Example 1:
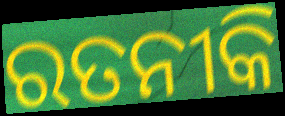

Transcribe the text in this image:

ରତନୀକି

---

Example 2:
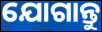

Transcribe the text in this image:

ଯୋଗାନ୍ତୁ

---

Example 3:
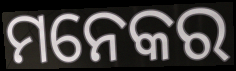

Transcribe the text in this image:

ମନେକର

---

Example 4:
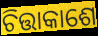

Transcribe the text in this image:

ଚିତ୍ତାକାଶେ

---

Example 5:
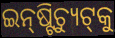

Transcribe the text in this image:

ଇନ୍‌ଷ୍ଟିଚ୍ୟୁଟ୍‌କୁ